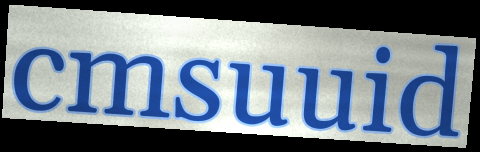
cmsuuid